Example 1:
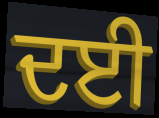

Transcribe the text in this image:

ਦਈ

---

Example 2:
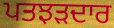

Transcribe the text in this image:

ਪਤਝੜਦਾਰ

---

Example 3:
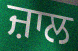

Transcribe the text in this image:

ਜ਼ਾਲ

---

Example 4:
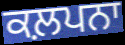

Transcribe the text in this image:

ਕਲ਼ਪਨਾ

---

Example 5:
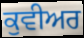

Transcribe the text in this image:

ਕੁਵੀਅਰ